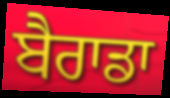
ਬੈਰਾਡਾ